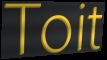
Toit